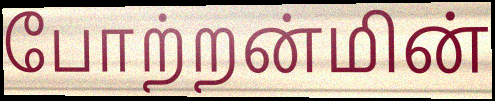
போற்றன்மின்